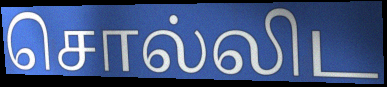
சொல்லிட